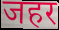
जहर